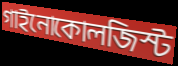
গাইনোকোলজিস্ট